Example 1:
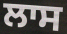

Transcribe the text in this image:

ਲਾਸ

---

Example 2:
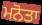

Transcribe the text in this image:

ਮਨੋਤਾ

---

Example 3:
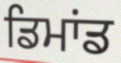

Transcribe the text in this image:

ਡਿਮਾਂਡ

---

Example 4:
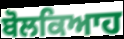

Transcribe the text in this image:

ਬੋਲਕਿਆਹ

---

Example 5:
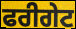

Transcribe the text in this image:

ਫਰੀਗੇਟ